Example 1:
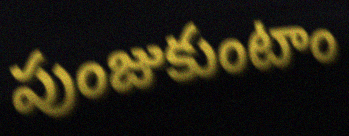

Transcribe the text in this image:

పుంజుకుంటాం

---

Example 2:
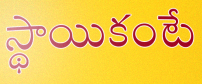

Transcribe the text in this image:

స్థాయికంటే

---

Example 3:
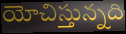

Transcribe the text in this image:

యోచిస్తున్నది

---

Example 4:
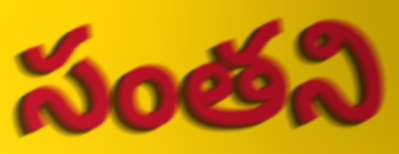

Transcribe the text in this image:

సంతని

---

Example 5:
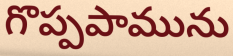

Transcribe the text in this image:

గొప్పపామును